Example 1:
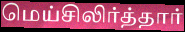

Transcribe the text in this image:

மெய்சிலிர்த்தார்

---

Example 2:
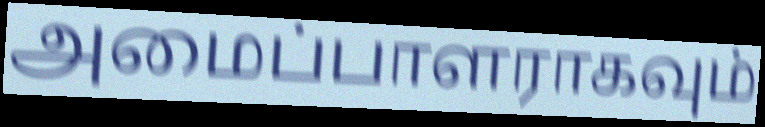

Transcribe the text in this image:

அமைப்பாளராகவும்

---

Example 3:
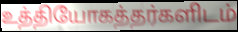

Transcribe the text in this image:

உத்தியோகத்தர்களிடம்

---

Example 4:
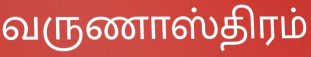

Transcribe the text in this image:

வருணாஸ்திரம்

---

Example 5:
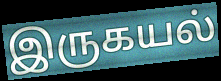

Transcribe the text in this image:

இருகயல்